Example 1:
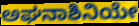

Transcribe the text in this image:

ಅಘನಾಶಿನಿಯೇ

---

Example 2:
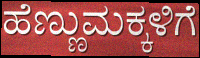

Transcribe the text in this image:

ಹೆಣ್ಣುಮಕ್ಕಳಿಗೆ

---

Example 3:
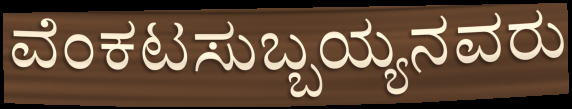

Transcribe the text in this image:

ವೆಂಕಟಸುಬ್ಬಯ್ಯನವರು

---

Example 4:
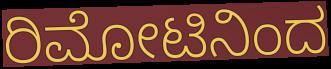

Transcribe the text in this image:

ರಿಮೋಟಿನಿಂದ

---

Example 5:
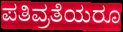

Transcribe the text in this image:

ಪತಿವ್ರತೆಯರೂ